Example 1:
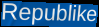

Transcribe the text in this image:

Republike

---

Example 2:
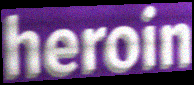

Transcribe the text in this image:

heroin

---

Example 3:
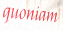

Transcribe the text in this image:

quoniam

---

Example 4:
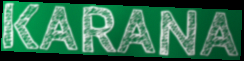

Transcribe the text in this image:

KARANA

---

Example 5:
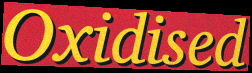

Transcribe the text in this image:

Oxidised